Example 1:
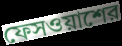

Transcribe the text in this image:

ফেসওয়াশের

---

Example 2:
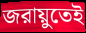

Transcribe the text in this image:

জরায়ুতেই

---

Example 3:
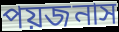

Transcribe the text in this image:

পয়জনাস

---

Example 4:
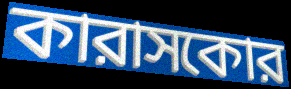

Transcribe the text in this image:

কারাসকোর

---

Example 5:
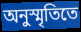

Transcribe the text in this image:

অনুস্মৃতিতে